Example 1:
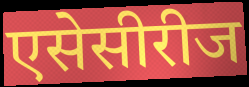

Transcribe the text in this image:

एसेसीरीज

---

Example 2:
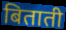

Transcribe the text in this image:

बिताती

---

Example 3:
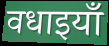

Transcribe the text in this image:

वधाइयाँ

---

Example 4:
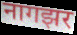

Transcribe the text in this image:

नागझर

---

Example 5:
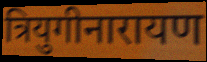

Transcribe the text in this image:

त्रियुगीनारायण